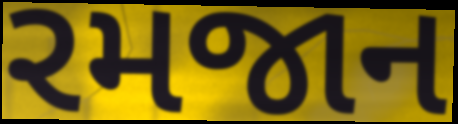
રમજાન